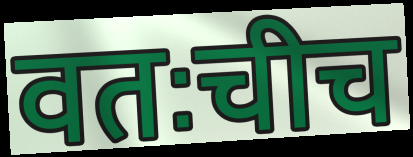
वतःचीच